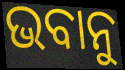
ଭବାନୁ